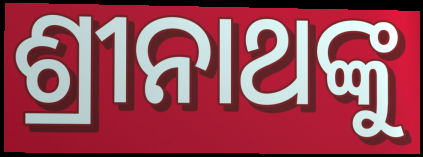
ଶ୍ରୀନାଥଙ୍କୁ